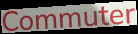
Commuter